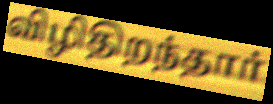
விழிதிறந்தார்